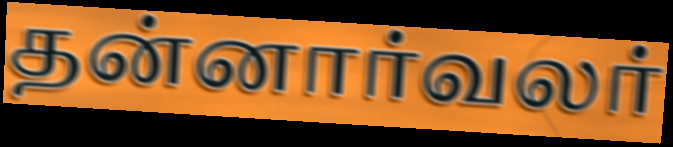
தன்னார்வலர்